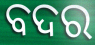
ବଦର